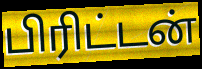
பிரிட்டன்